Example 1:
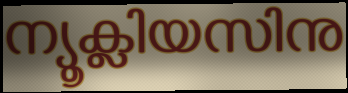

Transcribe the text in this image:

ന്യൂക്ലിയസിനു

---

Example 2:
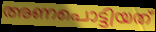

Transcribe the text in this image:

അണപൊട്ടിയത്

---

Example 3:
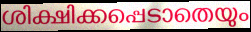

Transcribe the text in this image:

ശിക്ഷിക്കപ്പെടാതെയും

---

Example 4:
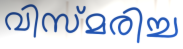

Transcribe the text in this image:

വിസ്മരിച്ച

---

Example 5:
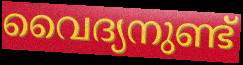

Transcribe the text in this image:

വൈദ്യനുണ്ട്